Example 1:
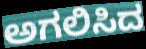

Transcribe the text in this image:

ಅಗಲಿಸಿದ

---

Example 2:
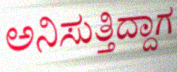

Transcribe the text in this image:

ಅನಿಸುತ್ತಿದ್ದಾಗ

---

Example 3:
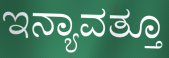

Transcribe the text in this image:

ಇನ್ಯಾವತ್ತೂ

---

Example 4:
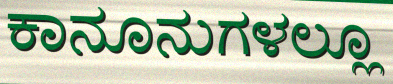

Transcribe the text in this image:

ಕಾನೂನುಗಳಲ್ಲೂ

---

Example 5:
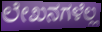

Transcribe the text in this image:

ಲೇಖನಗಳೆಲ್ಲ